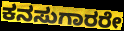
ಕನಸುಗಾರರೇ